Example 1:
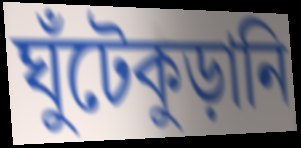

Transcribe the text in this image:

ঘুঁটেকুড়ানি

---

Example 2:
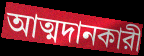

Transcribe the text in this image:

আত্মদানকারী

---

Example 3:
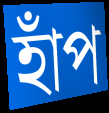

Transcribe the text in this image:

হাঁপ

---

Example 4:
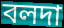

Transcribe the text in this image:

বলদা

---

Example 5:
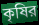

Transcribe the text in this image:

কৃষির